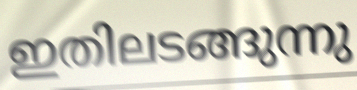
ഇതിലടങ്ങുന്നു